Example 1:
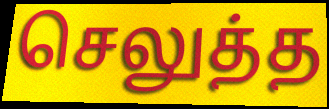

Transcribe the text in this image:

செலுத்த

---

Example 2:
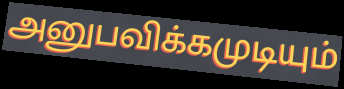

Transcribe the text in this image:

அனுபவிக்கமுடியும்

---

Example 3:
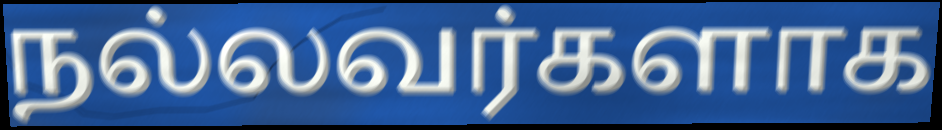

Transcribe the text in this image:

நல்லவர்களாக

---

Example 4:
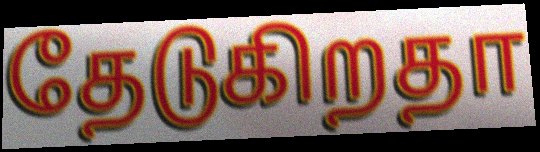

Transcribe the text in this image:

தேடுகிறதா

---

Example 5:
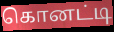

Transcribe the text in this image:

கொனட்டி